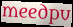
meedpu